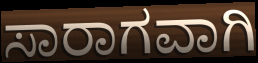
ಸಾರಾಗವಾಗಿ